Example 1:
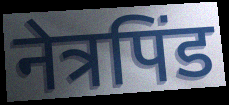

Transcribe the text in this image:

नेत्रपिंड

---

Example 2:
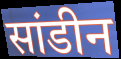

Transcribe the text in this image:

सांडीन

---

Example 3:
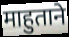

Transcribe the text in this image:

माहुताने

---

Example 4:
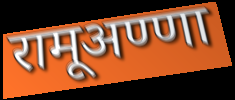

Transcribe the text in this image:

रामूअण्णा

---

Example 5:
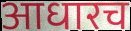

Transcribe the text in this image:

आधारच